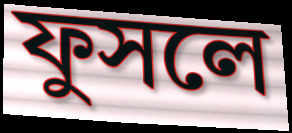
ফুসলে